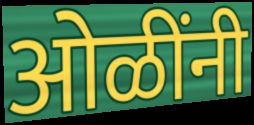
ओळींनी